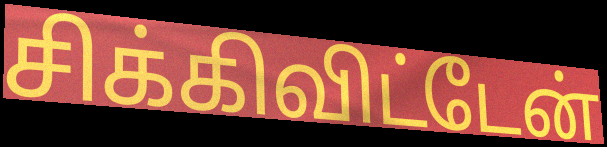
சிக்கிவிட்டேன்